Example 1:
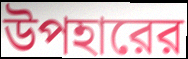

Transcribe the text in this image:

উপহারের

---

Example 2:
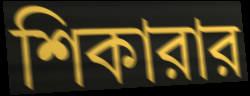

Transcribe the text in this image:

শিকারার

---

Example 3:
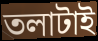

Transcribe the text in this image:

তলাটাই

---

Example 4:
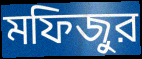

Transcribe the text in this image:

মফিজুর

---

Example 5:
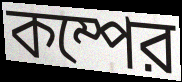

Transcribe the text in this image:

কম্পের